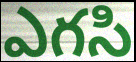
ఎగసి